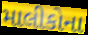
માલીકોના